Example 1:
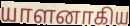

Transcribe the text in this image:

யாளனாகிய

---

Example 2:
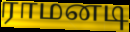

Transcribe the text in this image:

ராமனடி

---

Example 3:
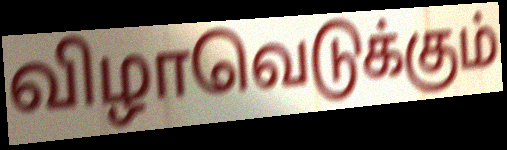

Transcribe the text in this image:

விழாவெடுக்கும்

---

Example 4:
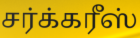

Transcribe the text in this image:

சர்க்கரீஸ்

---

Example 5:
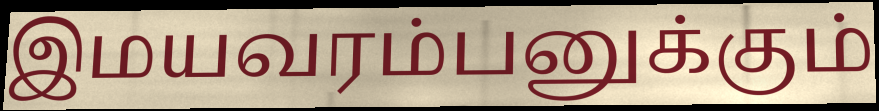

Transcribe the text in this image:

இமயவரம்பனுக்கும்